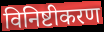
विनिष्टीकरण